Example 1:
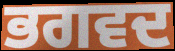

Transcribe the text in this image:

ਭਗਵਦ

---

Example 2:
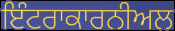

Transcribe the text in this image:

ਇੰਟਰਾਕਾਰਨੀਅਲ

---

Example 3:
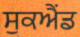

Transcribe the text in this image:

ਸੁਕਐਂਡ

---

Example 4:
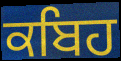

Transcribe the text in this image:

ਕਬਿਹ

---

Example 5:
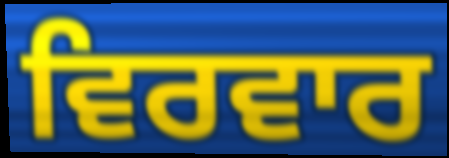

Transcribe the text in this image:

ਵਿਰਵਾਰ